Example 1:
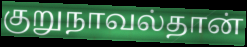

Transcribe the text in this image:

குறுநாவல்தான்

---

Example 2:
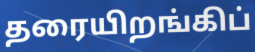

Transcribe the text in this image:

தரையிறங்கிப்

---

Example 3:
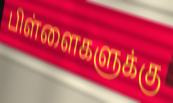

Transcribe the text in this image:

பிள்ளைகளுக்கு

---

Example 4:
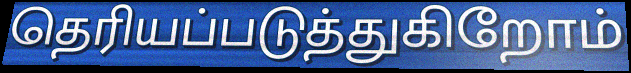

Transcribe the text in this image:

தெரியப்படுத்துகிறோம்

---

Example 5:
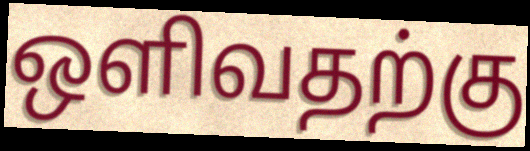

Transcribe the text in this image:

ஒளிவதற்கு